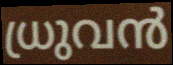
ധ്രുവൻ